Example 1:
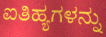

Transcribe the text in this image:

ಐತಿಹ್ಯಗಳನ್ನು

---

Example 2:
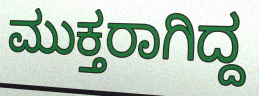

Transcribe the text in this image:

ಮುಕ್ತರಾಗಿದ್ದ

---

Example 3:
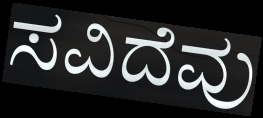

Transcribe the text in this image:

ಸವಿದೆವು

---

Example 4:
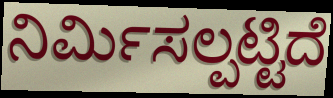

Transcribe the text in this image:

ನಿರ್ಮಿಸಲ್ಪಟ್ಟಿದೆ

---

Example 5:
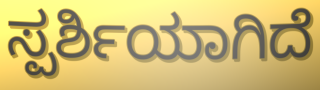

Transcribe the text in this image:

ಸ್ಪರ್ಶಿಯಾಗಿದೆ